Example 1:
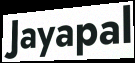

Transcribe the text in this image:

Jayapal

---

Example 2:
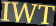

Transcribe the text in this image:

IWT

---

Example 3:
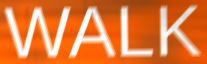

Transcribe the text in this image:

WALK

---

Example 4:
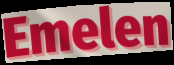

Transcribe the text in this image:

Emelen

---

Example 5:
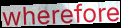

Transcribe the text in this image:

wherefore